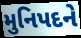
મુનિપદને